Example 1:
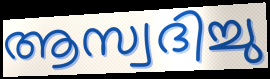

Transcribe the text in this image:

ആസ്വദിച്ചു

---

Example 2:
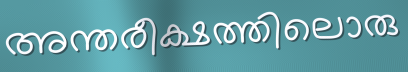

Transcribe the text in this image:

അന്തരീക്ഷത്തിലൊരു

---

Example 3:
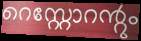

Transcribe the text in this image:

റെസ്റ്റോറന്റും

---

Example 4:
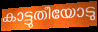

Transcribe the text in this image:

കാട്ടുതീയോടു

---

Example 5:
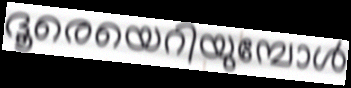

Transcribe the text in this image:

ദൂരെയെറിയുമ്പോൾ